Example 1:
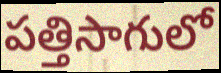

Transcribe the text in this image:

పత్తిసాగులో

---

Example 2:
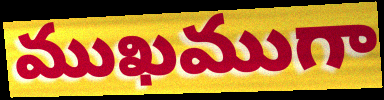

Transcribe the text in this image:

ముఖముగా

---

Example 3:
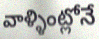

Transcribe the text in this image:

వాళ్ళింట్లోనే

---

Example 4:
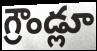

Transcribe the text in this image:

గ్రౌండ్లూ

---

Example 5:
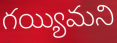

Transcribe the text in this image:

గయ్యిమని